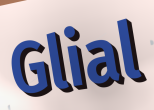
Glial